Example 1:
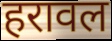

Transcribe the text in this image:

हरावल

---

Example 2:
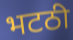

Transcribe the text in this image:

भटठी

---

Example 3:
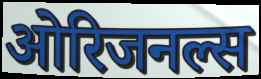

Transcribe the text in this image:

ओरिजनल्स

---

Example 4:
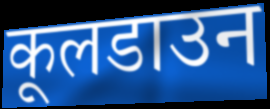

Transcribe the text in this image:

कूलडाउन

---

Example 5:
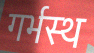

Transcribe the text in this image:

गर्भस्थ